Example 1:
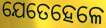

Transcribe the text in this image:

ଯେତେହେଳେ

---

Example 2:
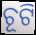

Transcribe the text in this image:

ଚୂଟି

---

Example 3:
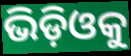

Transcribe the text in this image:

ଭିଡ଼ିଓକୁ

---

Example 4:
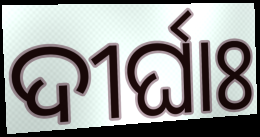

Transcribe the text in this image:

ଦୀର୍ଘାଃ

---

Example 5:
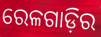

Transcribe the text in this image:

ରେଳଗାଡ଼ିର